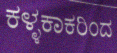
ಕಳ್ಳಕಾಕರಿಂದ